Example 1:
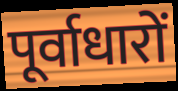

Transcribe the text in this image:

पूर्वाधारों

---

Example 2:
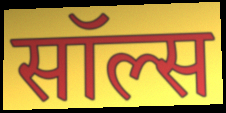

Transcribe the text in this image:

सॉल्स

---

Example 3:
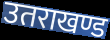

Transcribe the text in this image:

उतराखण्ड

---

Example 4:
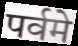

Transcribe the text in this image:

पर्वमे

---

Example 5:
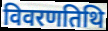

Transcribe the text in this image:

विवरणतिथि